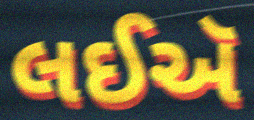
લઈઍ